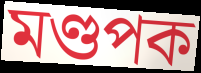
মণ্ডপক